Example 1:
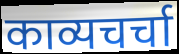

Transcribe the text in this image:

काव्यचर्चा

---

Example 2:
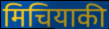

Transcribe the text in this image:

मिचियाकी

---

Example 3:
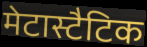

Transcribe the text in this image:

मेटास्टैटिक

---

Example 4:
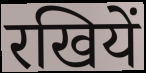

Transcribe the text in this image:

रखियें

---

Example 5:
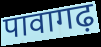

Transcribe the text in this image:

पावागढ़